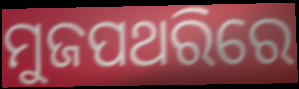
ମୁଜପଥରିରେ